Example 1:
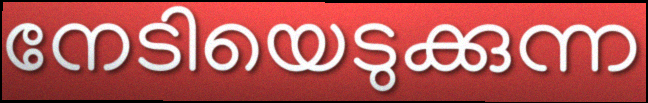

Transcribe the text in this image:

നേടിയെടുക്കുന്ന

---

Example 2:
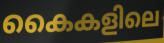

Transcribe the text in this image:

കൈകളിലെ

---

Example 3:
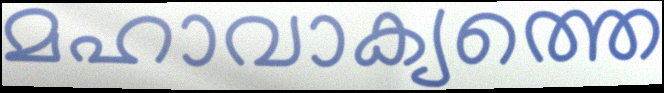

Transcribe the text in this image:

മഹാവാക്യത്തെ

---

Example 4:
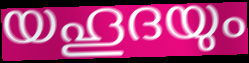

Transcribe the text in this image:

യഹൂദയും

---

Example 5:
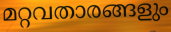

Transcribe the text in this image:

മറ്റവതാരങ്ങളും